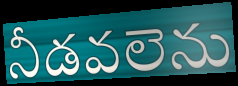
నీడవలెను